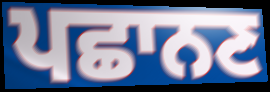
ਪਛਾਨਣ